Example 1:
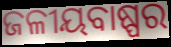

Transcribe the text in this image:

ଜଳୀୟବାଷ୍ପର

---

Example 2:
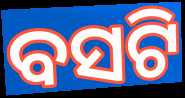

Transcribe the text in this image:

ବସଟି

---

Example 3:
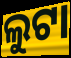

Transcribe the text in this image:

ଲୁଟା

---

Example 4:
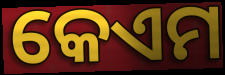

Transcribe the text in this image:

କେଏମ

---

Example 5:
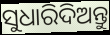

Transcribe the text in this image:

ସୁଧାରିଦିଅନ୍ତୁ